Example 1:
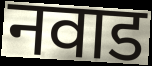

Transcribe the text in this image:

नवाड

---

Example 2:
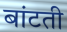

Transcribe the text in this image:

बांटती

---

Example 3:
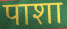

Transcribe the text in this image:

पाशा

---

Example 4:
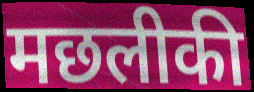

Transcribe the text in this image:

मछलीकी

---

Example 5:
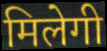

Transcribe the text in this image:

मिलेगी